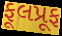
ફૂલપ્રૂફ